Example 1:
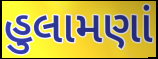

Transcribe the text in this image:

હુલામણાં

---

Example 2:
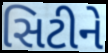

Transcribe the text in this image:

સિટીને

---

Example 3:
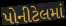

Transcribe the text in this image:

પોનીટેલમાં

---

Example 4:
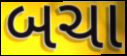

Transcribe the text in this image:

બચા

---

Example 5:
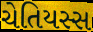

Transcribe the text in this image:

ચેતિયસ્સ